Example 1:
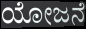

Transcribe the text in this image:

ಯೋಜನೆ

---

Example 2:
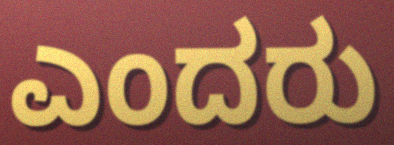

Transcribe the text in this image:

ಎಂದರು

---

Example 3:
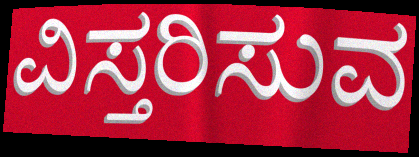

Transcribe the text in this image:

ವಿಸ್ತರಿಸುವ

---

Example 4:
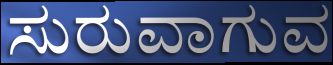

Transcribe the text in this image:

ಸುರುವಾಗುವ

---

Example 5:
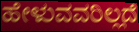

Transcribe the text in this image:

ಹೇಳುವವರಿಲ್ಲದೆ